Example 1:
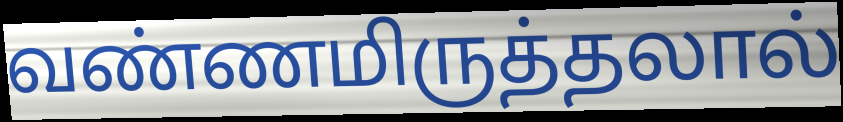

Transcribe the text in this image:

வண்ணமிருத்தலால்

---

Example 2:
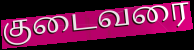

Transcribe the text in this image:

குடைவரை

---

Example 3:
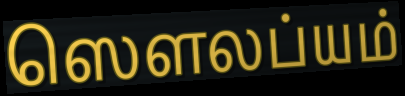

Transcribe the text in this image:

ஸௌலப்யம்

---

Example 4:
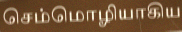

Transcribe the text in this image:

செம்மொழியாகிய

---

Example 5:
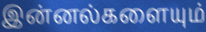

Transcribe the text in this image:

இன்னல்களையும்